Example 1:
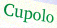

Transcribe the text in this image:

Cupolo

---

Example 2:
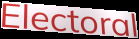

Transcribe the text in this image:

Electoral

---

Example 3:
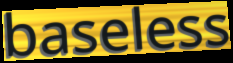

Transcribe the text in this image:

baseless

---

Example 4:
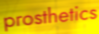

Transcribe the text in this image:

prosthetics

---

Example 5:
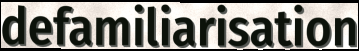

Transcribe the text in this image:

defamiliarisation